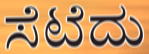
ಸೆಟೆದು